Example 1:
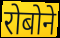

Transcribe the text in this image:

रोबोने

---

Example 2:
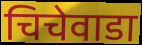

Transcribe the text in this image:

चिचेवाडा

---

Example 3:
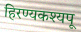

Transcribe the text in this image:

हिरण्यकश्यपू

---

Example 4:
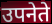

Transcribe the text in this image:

उपनेते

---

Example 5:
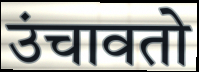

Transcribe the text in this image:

उंचावतो